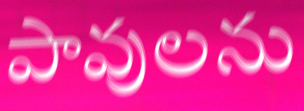
పావులను